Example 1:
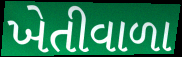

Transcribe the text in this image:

ખેતીવાળા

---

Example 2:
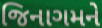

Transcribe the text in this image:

જિનાગમને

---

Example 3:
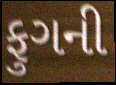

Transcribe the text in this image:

ફુગની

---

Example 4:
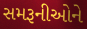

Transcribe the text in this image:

સમરૂનીઓને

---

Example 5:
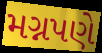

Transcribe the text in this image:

મગ્નપણે